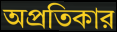
অপ্রতিকার